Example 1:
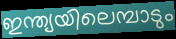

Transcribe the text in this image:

ഇന്ത്യയിലെമ്പാടും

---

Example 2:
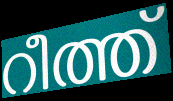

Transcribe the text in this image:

റീത്ത്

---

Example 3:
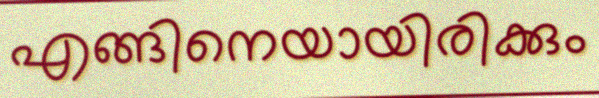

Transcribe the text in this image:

എങ്ങിനെയായിരിക്കും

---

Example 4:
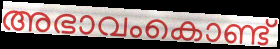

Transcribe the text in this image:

അഭാവംകൊണ്ട്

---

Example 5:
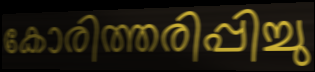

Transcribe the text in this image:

കോരിത്തരിപ്പിച്ചു